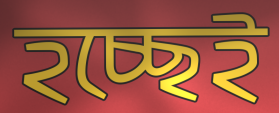
হচ্ছেই